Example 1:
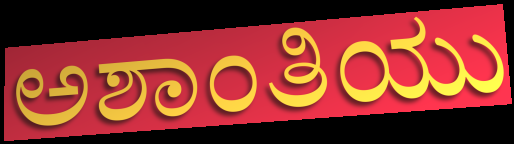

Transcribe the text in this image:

ಅಶಾಂತಿಯು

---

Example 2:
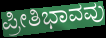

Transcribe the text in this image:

ಪ್ರೀತಿಭಾವವು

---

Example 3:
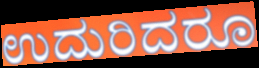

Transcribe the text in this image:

ಉದುರಿದರೂ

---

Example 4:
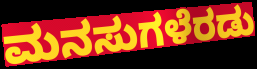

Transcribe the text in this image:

ಮನಸುಗಳೆರಡು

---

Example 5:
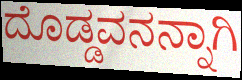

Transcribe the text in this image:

ದೊಡ್ಡವನನ್ನಾಗಿ